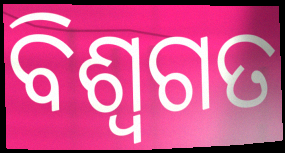
ବିଶ୍ୱଗତ